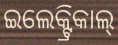
ଇଲେକ୍ଟ୍ରିକାଲ୍